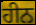
ਹੀਨ